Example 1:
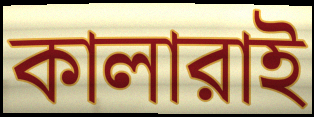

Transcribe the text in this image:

কালারাই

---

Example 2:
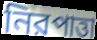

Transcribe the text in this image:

নিরপাত্তা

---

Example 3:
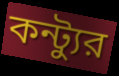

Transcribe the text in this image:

কন্ট্যুর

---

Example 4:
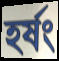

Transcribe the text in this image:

হর্ষং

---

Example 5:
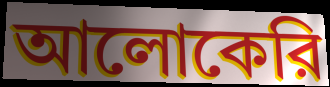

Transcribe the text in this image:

আলোকেরি